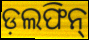
ଡ଼ଲଫିନ୍